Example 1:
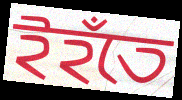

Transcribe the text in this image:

ইহঁতে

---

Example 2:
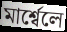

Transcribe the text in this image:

মাৰ্শ্বেলে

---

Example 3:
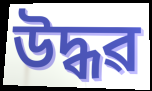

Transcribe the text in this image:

উদ্ধৱ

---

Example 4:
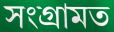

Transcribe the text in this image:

সংগ্ৰামত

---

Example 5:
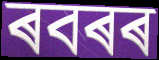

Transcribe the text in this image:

ৰবৰৰ